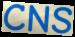
CNS